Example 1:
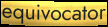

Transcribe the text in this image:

equivocator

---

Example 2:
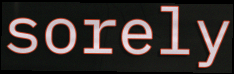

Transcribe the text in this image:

sorely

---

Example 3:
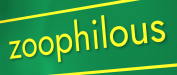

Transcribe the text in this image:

zoophilous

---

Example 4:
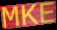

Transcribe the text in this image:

MKE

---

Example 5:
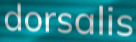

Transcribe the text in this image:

dorsalis